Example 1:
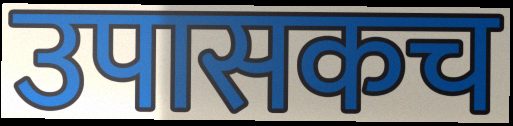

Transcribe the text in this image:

उपासकच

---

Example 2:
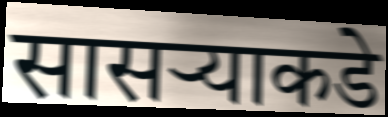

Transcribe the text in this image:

सासऱ्याकडे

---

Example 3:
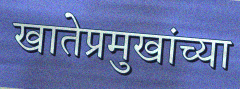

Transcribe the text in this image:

खातेप्रमुखांच्या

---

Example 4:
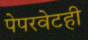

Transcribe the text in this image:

पेपरवेटही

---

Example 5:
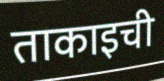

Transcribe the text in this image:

ताकाइची